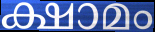
ക്ഷാമം